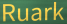
Ruark